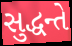
સુદ્ધન્તે